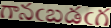
గానఁబడఁగ